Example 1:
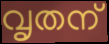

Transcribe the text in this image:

വൃതന്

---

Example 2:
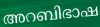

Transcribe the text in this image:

അറബിഭാഷ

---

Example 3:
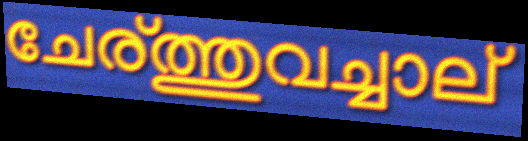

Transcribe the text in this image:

ചേര്ത്തുവച്ചാല്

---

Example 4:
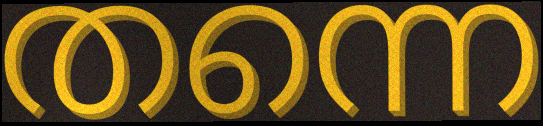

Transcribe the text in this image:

തന്നെ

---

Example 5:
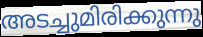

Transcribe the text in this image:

അടച്ചുമിരിക്കുന്നു